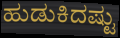
ಹುಡುಕಿದಷ್ಟು